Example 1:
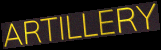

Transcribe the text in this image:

ARTILLERY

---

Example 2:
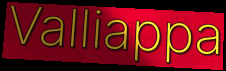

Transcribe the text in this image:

Valliappa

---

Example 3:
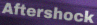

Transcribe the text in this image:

Aftershock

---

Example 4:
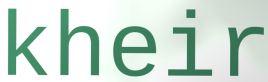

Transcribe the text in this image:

kheir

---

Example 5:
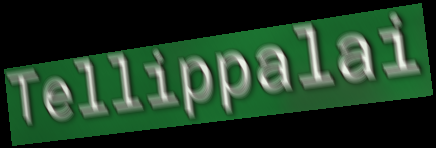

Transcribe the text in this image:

Tellippalai